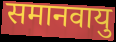
समानवायु